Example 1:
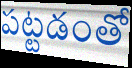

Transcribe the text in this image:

పట్టడంతో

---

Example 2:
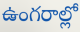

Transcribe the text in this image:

ఉంగరాల్లో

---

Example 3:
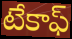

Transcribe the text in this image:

టేకాఫ్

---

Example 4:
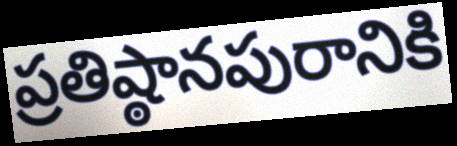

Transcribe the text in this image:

ప్రతిష్ఠానపురానికి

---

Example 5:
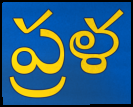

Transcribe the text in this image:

ప్రళ